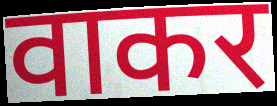
वाकर